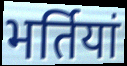
भर्तियां